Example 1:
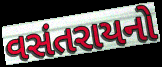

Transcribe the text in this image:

વસંતરાયનો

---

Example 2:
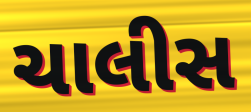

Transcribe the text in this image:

ચાલીસ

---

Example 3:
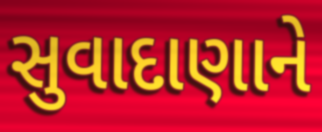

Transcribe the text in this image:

સુવાદાણાને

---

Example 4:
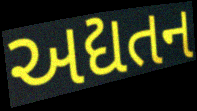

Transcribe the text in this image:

અદ્યતન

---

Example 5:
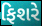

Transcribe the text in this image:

ફિશરે